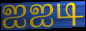
ஐஐடி